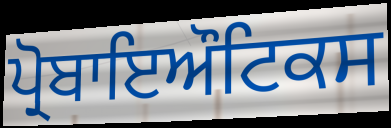
ਪ੍ਰੋਬਾਇਔਟਿਕਸ